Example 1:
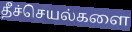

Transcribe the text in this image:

தீச்செயல்களை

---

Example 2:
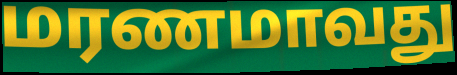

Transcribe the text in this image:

மரணமாவது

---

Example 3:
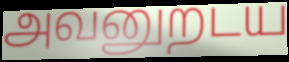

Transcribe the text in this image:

அவனுறடய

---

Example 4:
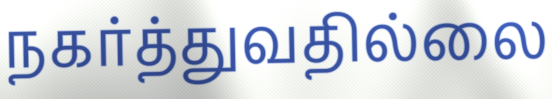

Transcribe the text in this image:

நகர்த்துவதில்லை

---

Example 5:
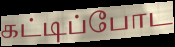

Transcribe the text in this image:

கட்டிப்போட